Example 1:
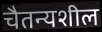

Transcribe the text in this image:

चैतन्यशील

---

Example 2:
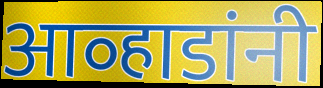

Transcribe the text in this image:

आव्हाडांनी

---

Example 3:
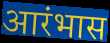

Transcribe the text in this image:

आरंभास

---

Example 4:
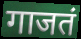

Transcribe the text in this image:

गाजतं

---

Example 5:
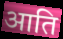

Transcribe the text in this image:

आति